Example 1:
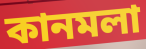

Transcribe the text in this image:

কানমলা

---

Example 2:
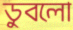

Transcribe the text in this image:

ডুবলো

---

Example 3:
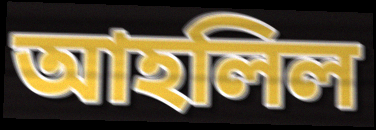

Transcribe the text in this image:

আহলিল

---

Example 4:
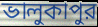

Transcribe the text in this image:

ভালুকাপুর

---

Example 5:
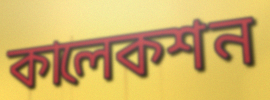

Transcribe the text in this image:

কালেকশন